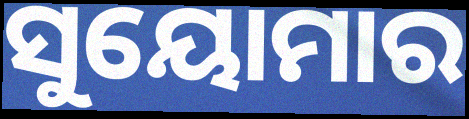
ସୁୟୋମାର